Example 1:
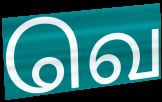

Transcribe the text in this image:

வெ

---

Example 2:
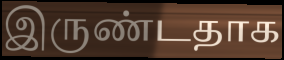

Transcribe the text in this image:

இருண்டதாக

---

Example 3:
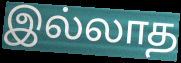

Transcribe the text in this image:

இல்லாத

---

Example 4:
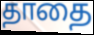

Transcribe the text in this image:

தாதை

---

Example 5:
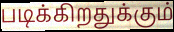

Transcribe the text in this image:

படிக்கிறதுக்கும்